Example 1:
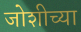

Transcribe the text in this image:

जोशीच्या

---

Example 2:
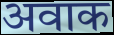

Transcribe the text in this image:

अवाक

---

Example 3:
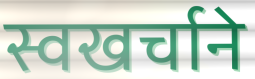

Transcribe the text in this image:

स्वखर्चाने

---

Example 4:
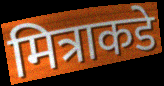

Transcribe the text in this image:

मित्राकडे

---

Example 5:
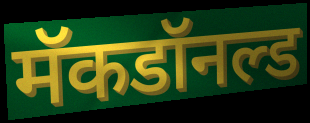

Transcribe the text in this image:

मॅकडॉनल्ड